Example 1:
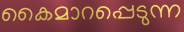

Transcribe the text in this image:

കൈമാറപ്പെടുന്ന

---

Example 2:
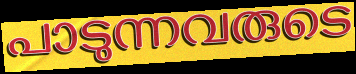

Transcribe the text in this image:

പാടുന്നവരുടെ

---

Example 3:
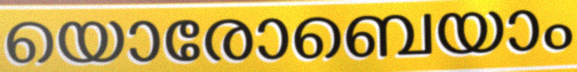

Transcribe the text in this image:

യൊരോബെയാം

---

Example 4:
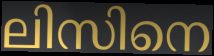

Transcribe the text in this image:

ലിസിനെ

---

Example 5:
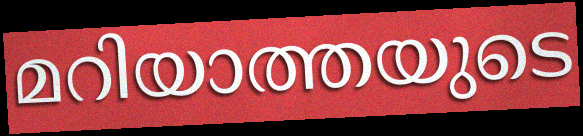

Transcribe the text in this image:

മറിയാത്തയുടെ